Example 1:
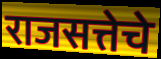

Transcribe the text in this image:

राजसत्तेचे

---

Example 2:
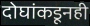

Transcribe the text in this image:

दोघांकडूनही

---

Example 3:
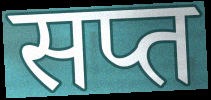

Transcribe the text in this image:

सप्त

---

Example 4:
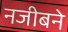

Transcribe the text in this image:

नजीबने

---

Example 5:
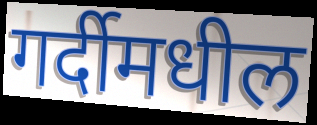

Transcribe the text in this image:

गर्दीमधील